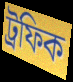
ট্রফিক